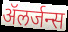
ॲलर्जन्स